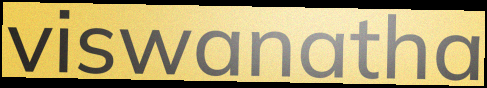
viswanatha